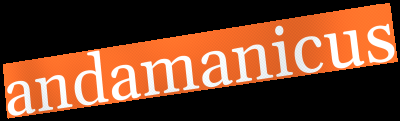
andamanicus